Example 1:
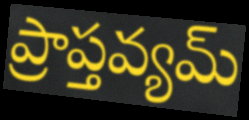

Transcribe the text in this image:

ప్రాప్తవ్యమ్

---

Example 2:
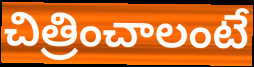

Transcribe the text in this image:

చిత్రించాలంటే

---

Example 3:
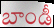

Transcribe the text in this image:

బాండీ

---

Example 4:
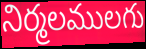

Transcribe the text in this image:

నిర్మలములగు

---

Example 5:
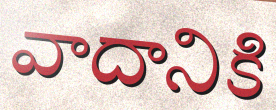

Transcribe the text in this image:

వాదానికి